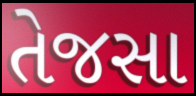
તેજસા